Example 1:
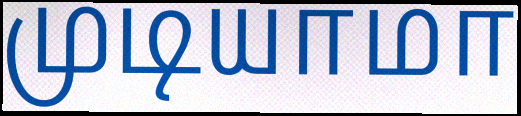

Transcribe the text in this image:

முடியாமா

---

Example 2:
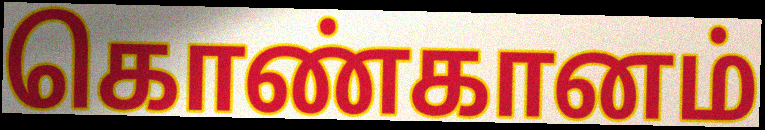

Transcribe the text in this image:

கொண்கானம்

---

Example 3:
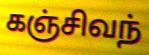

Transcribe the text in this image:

கஞ்சிவந்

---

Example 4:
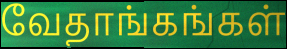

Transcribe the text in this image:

வேதாங்கங்கள்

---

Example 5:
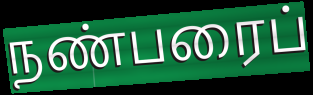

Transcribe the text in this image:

நண்பரைப்